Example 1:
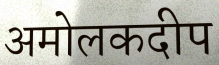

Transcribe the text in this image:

अमोलकदीप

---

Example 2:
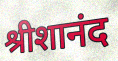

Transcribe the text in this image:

श्रीशानंद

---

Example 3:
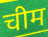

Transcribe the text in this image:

चीम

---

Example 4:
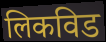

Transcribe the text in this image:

लिकविड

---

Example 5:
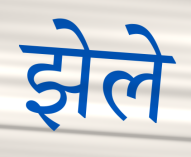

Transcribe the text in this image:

झेले